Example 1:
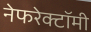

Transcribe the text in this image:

नेफरेक्टॉमी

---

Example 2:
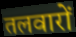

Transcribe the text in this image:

तलवारों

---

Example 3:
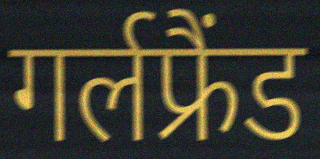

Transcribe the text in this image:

गर्लफ्रैंड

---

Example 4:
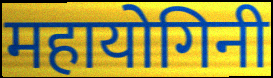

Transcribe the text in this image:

महायोगिनी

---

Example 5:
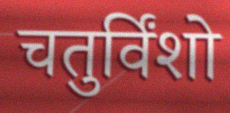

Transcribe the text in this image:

चतुर्विंशो